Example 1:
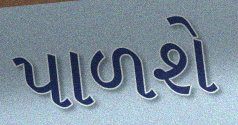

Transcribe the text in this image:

પાળશે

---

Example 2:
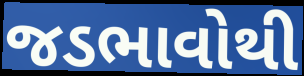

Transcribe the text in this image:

જડભાવોથી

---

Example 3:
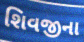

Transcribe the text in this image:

શિવજીના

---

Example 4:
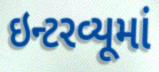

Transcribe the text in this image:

ઇન્ટરવ્યૂમાં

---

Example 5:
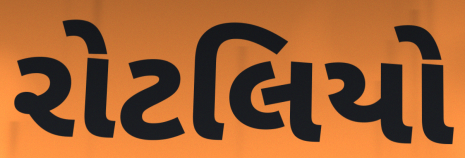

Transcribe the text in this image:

રોટલિયો